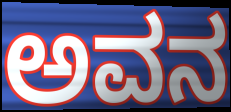
ಅವನ